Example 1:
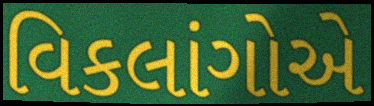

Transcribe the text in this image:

વિકલાંગોએ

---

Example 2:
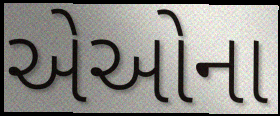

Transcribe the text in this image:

એઓના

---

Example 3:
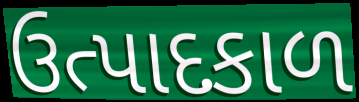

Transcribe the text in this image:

ઉત્પાદકાળ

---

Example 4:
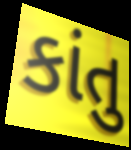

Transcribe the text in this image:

કાંતુ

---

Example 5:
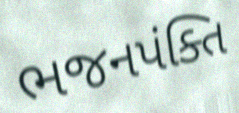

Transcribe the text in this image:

ભજનપંક્તિ